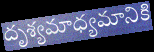
దృశ్యమాధ్యమానికి